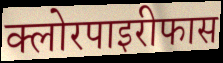
क्लोरपाइरीफास